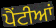
ਪੈਂਟੀਆਂ